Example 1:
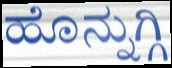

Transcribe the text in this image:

ಹೊನ್ನುಗ್ಗಿ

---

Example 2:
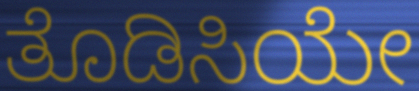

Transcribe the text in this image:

ತೊಡಿಸಿಯೇ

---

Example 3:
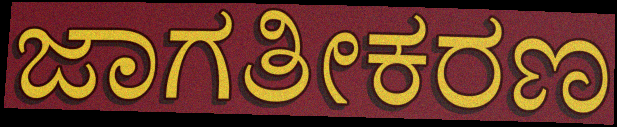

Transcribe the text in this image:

ಜಾಗತೀಕರಣ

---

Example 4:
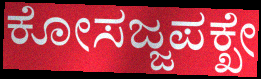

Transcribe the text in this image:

ಕೋಸಜ್ಜಪಕ್ಖೇ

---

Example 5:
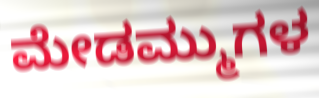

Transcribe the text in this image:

ಮೇಡಮ್ಮುಗಳ